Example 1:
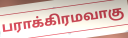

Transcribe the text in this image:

பராக்கிரமவாகு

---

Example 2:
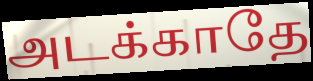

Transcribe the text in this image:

அடக்காதே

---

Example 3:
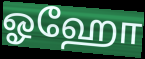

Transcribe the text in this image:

ஓஹோ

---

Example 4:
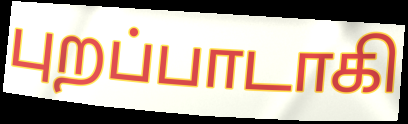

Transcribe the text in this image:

புறப்பாடாகி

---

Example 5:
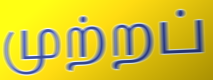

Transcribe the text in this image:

முற்றப்